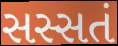
સસ્સતં